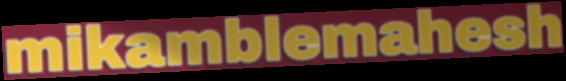
mikamblemahesh